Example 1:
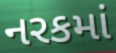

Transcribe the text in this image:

નરકમાં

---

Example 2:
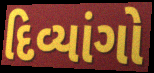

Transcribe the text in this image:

દિવ્યાંગો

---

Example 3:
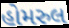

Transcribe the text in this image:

હોમરુલ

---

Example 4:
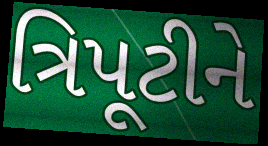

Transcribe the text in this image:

ત્રિપૂટીને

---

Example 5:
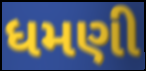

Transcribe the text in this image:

ધમણી